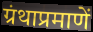
ग्रंथाप्रमाणें